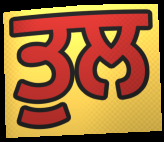
ਤੁਲ